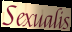
Sexualis